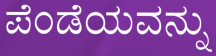
ಪೆಂಡೆಯವನ್ನು